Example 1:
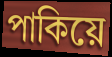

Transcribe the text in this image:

পাকিয়ে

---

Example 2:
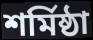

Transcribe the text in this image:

শর্মিষ্ঠা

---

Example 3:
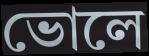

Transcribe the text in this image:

ভোলে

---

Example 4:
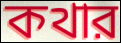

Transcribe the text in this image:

কথার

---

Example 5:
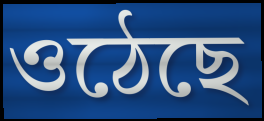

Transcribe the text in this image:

ওঠেছে